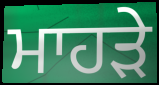
ਮਾਹੜੇ